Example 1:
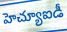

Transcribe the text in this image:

హెచ్యూఐడీ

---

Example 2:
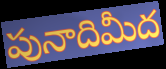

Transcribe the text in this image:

పునాదిమీద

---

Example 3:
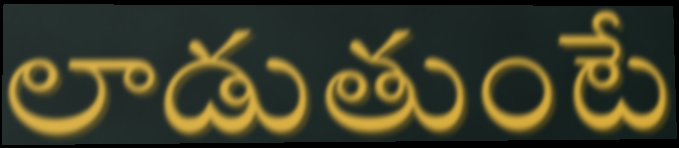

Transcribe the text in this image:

లాడుతుంటే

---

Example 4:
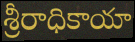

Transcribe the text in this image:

శ్రీరాధికాయా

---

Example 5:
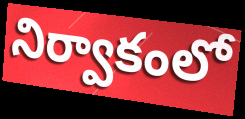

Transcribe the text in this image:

నిర్వాకంలో